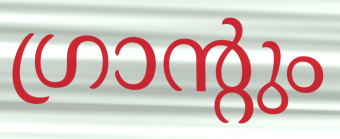
ഗ്രാന്റും